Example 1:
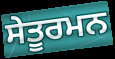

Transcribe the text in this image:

ਸੇਤੂਰਮਨ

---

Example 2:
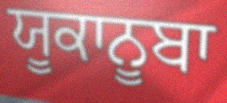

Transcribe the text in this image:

ਯੂਕਾਨੂਬਾ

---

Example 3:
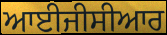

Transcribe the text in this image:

ਆਈਜੀਸੀਆਰ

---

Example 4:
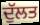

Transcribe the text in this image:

ਦੁੱਲਤ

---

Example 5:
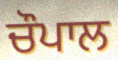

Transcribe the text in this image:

ਚੌਪਾਲ